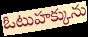
ఓటుహక్కును